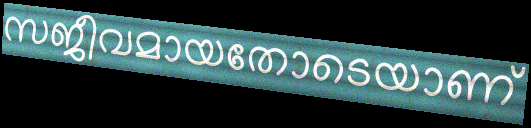
സജീവമായതോടെയാണ്